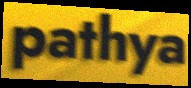
pathya